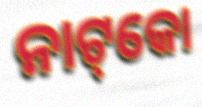
ନାଟ୍‌କୋ